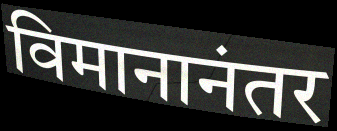
विमानानंतर